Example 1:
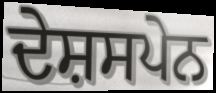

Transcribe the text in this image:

ਦੇਸ਼ਸਪੇਨ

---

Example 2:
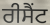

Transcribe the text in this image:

ਰੀਸੈਂਟ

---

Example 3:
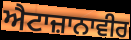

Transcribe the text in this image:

ਐਟਾਜ਼ਾਨਾਵੀਰ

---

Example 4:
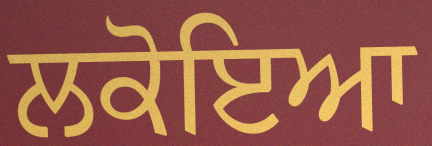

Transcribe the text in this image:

ਲਕੋਇਆ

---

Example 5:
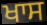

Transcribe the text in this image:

ਖਾਸ